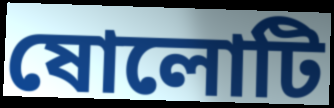
ষোলোটি